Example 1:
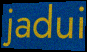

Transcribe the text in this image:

jadui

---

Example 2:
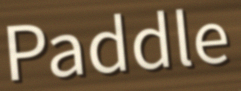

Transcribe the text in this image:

Paddle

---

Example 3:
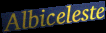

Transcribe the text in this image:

Albiceleste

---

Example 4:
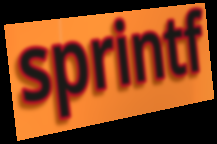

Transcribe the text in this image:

sprintf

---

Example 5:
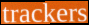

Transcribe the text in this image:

trackers